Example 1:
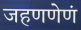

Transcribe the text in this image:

जहणणेणं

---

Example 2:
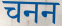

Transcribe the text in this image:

चनन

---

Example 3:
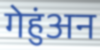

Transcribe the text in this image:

गेहुंअन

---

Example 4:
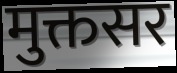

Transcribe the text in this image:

मुक्तसर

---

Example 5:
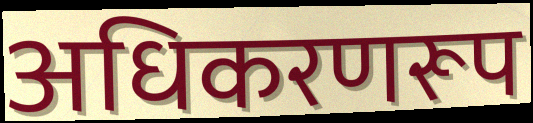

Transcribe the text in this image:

अधिकरणरूप